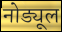
नोड्यूल